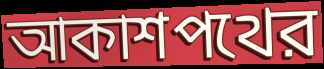
আকাশপথের